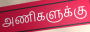
அணிகளுக்கு